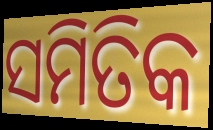
ସମିତିକ